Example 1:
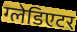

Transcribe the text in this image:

ग्लेडिएटर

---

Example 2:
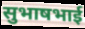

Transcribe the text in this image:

सुभाषभाई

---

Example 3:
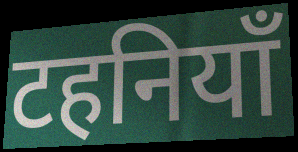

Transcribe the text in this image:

टहनियाँ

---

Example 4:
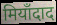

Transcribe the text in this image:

मियाँदाद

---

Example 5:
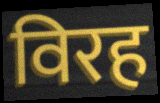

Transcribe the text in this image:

विरह